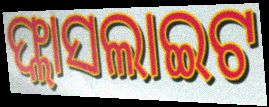
ଫ୍ଲାସଲାଇଟ